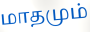
மாதமும்